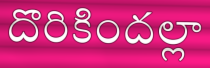
దొరికిందల్లా